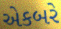
એકબરે